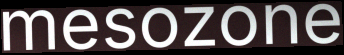
mesozone